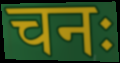
चनः